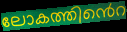
ലോകത്തിൻെറ